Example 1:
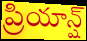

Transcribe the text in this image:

ప్రియాన్ష్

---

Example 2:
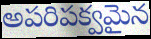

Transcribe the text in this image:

అపరిపక్వమైన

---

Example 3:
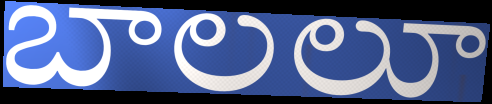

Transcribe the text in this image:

బాలలూ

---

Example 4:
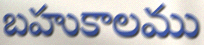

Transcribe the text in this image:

బహుకాలము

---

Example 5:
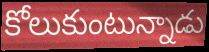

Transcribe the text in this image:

కోలుకుంటున్నాడు